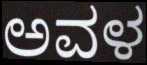
ಅವಳ